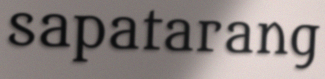
sapatarang